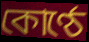
কোণ্ঠে